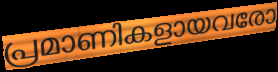
പ്രമാണികളായവരോ